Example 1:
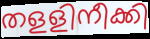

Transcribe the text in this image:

തളളിനീക്കി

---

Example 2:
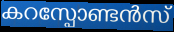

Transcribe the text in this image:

കറസ്പോണ്ടൻസ്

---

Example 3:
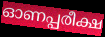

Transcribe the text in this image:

ഓണപ്പരീക്ഷ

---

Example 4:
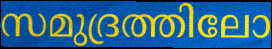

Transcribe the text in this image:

സമുദ്രത്തിലോ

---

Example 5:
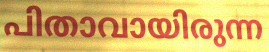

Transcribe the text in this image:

പിതാവായിരുന്ന